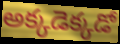
అక్కడెక్కడో